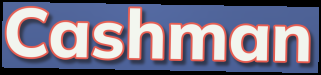
Cashman